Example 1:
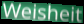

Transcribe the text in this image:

Weisheit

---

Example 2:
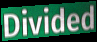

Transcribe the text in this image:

Divided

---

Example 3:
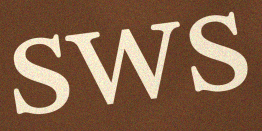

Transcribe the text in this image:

sws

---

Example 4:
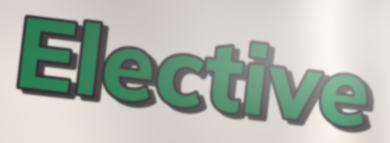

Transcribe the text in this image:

Elective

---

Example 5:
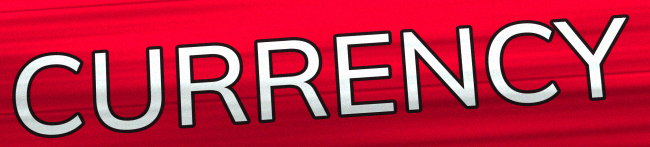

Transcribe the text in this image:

CURRENCY